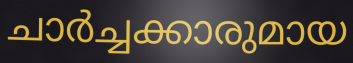
ചാർച്ചക്കാരുമായ